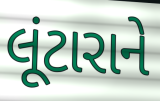
લૂંટારાને